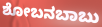
ಶೋಬನಬಾಬು